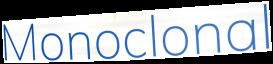
Monoclonal